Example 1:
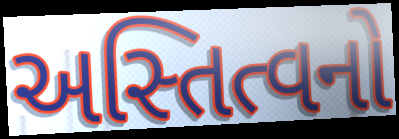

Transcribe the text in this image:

અસ્તિત્વનો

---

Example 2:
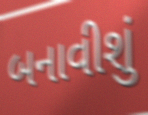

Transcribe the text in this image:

બનાવીશું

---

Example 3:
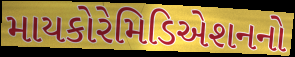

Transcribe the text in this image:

માયકોરેમિડિએશનનો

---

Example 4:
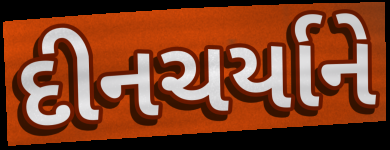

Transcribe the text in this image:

દીનચર્યાને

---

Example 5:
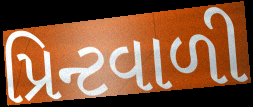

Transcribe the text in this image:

પ્રિન્ટવાળી